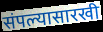
संपल्यासारखी